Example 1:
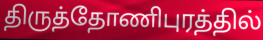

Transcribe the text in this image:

திருத்தோணிபுரத்தில்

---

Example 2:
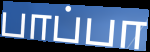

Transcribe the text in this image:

பாப்பா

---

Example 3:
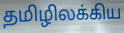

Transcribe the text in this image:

தமிழிலக்கிய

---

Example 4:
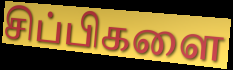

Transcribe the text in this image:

சிப்பிகளை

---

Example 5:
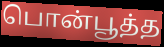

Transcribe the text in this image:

பொன்பூத்த